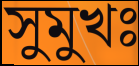
সুমুখঃ